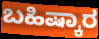
ಬಹಿಷ್ಕಾರ